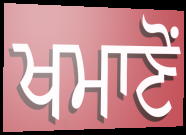
ਖਮਾਣੋਂ